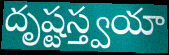
దృష్టస్త్వయా